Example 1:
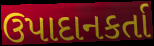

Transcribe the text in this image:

ઉપાદાનકર્તા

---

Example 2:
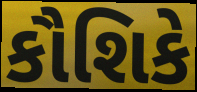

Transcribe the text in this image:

કૌશિકે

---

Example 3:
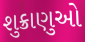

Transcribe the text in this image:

શુક્રાણુઓ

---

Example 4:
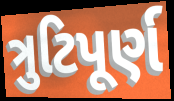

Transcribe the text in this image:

ત્રુટિપૂર્ણ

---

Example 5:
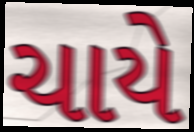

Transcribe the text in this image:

ચાયે